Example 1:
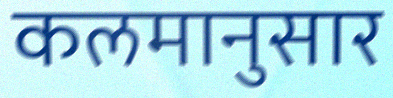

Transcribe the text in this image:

कलमानुसार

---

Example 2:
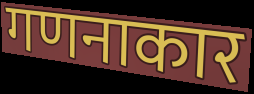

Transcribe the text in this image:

गणनाकार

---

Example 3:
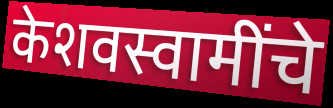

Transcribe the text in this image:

केशवस्वामींचे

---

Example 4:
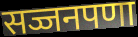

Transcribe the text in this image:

सज्जनपणा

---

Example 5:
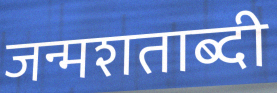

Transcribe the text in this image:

जन्मशताब्दी